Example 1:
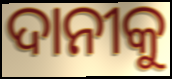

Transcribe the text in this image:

ଦାନୀକୁ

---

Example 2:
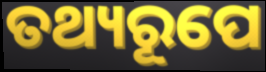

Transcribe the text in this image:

ତଥ୍ୟରୂପେ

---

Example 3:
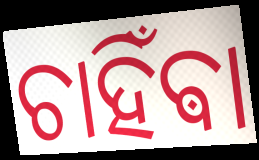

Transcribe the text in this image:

ଚାହିଁଵା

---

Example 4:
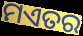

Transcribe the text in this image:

ମଏତର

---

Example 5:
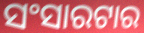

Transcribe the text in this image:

ସଂସାରଟାର